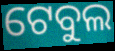
ଟେବୁଲ